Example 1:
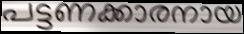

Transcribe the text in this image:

പട്ടണക്കാരനായ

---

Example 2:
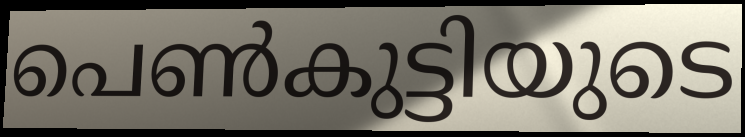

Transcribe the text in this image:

പെൺകുട്ടിയുടെ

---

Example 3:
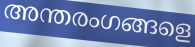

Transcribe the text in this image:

അന്തരംഗങ്ങളെ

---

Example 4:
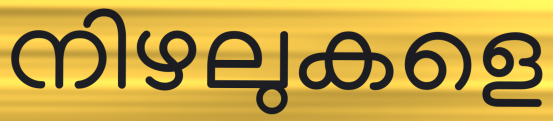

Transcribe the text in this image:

നിഴലുകളെ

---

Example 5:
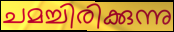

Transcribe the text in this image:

ചമച്ചിരിക്കുന്നു